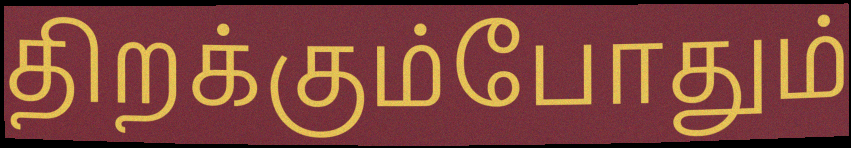
திறக்கும்போதும்